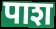
पाश